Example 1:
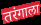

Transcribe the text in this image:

तरंगाला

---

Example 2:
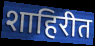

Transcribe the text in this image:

शाहिरीत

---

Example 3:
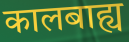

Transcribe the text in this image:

कालबाह्य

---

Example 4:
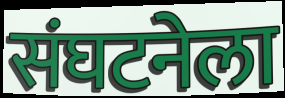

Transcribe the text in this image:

संघटनेला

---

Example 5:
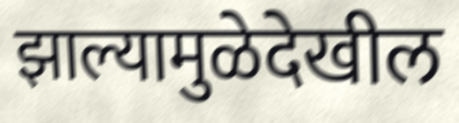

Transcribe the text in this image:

झाल्यामुळेदेखील